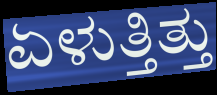
ಏಳುತ್ತಿತ್ತು